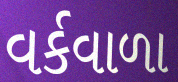
વર્કવાળા